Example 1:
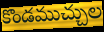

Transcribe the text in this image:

కొండముచ్చుల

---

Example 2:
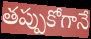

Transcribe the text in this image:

తప్పుకోగానే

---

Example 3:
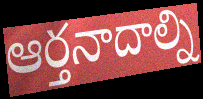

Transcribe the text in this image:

ఆర్తనాదాల్ని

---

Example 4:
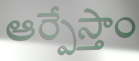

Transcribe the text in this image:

ఆర్పేస్తాం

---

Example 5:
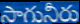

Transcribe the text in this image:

సాగునీరు